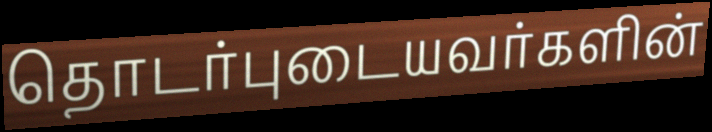
தொடர்புடையவர்களின்